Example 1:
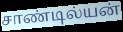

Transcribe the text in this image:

சாண்டில்யன்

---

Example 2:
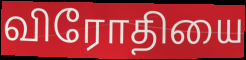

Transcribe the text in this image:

விரோதியை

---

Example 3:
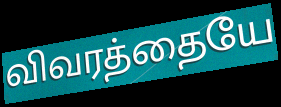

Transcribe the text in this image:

விவரத்தையே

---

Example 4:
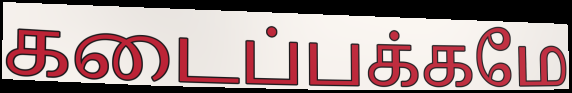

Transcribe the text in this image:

கடைப்பக்கமே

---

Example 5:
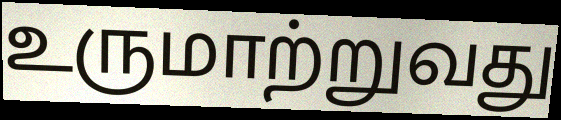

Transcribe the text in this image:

உருமாற்றுவது